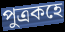
পুত্ৰকহে